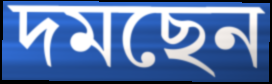
দমছেন